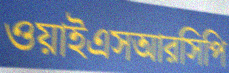
ওয়াইএসআরসিপি